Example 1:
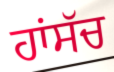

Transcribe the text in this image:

ਹਾਂਸੱਚ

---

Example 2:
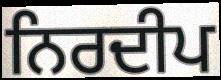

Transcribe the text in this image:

ਨਿਰਦੀਪ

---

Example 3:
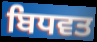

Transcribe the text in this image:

ਬਿਧਵਤ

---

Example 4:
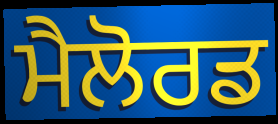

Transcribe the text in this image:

ਮੈਲੋਰਡ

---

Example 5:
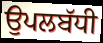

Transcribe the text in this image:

ਉਪਲਬੱਧੀ